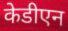
केडीएन